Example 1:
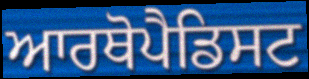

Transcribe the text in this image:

ਆਰਥੋਪੈਡਿਸਟ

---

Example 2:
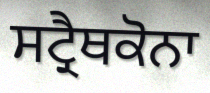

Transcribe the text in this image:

ਸਟ੍ਰੈਥਕੋਨਾ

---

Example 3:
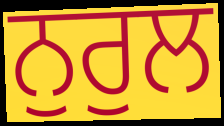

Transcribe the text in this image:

ਨੁਰੁਲ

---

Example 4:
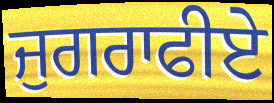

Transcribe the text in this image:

ਜੁਗਰਾਫੀਏ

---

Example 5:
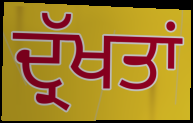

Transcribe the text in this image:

ਦ੍ਰੱਖਤਾਂ